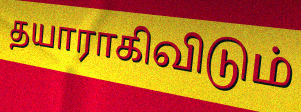
தயாராகிவிடும்